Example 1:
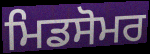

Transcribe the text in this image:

ਮਿਡਸੋਮਰ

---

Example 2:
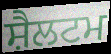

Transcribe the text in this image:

ਸ਼ੈਲਟਮ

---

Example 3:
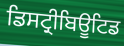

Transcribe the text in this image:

ਡਿਸਟ੍ਰੀਬਿਊਟਿਡ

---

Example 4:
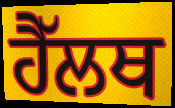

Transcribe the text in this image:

ਹੈੱਲਥ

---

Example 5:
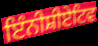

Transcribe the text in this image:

ਇੰਨੀਸ਼ੀਏਟਿਵ